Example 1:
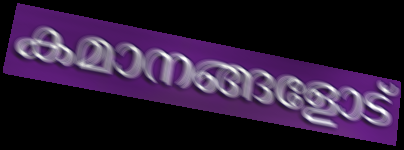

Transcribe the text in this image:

കമാനങ്ങളോട്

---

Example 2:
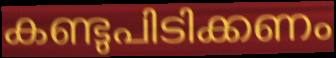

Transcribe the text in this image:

കണ്ടുപിടിക്കണം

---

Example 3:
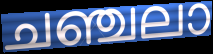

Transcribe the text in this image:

ചഞ്ചലാ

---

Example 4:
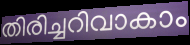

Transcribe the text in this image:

തിരിച്ചറിവാകാം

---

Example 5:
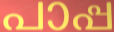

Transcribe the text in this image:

പാപ്പ